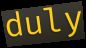
duly